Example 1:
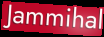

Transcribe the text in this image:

Jammihal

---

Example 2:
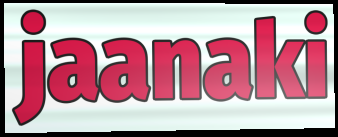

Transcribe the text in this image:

jaanaki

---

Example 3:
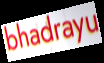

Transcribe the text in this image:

bhadrayu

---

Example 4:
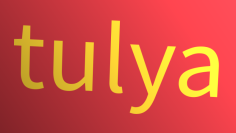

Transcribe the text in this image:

tulya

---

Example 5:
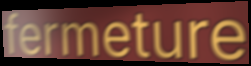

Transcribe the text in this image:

fermeture